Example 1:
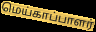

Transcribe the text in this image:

மெய்காப்பாளர்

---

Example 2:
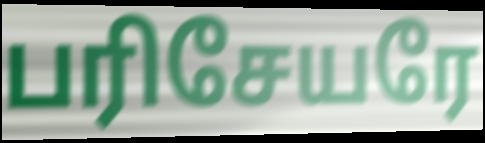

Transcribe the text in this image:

பரிசேயரே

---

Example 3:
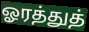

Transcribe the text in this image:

ஓரத்துத்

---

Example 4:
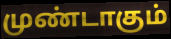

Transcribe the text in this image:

முண்டாகும்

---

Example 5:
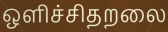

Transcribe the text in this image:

ஒளிச்சிதறலை